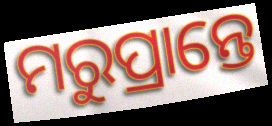
ମରୁପ୍ରାନ୍ତେ